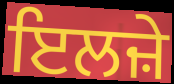
ਇਲਜ਼ੇ